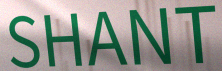
SHANT